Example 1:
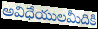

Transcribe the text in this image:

అవిధేయులమీదికి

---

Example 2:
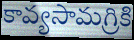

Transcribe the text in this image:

కావ్యసామగ్రికి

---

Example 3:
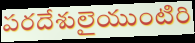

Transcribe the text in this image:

పరదేశులైయుంటిరి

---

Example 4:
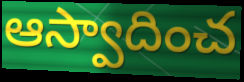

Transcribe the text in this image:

ఆస్వాదించ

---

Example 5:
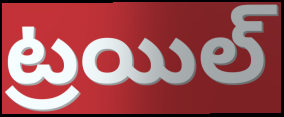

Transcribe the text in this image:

ట్రయిల్